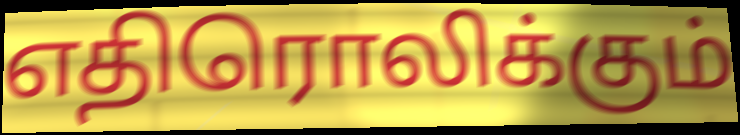
எதிரொலிக்கும்